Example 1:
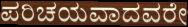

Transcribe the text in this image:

ಪರಿಚಯವಾದವರೇ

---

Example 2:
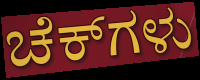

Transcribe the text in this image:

ಚೆಕ್‌ಗಳು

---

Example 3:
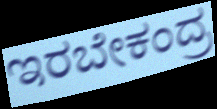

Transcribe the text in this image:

ಇರಬೇಕಂದ್ರ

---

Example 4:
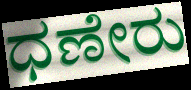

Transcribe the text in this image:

ಧಣೇರು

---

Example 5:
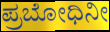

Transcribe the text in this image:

ಪ್ರಬೋಧಿನೀ